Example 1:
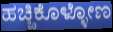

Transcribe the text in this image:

ಹಚ್ಚಿಕೊಳ್ಳೋಣ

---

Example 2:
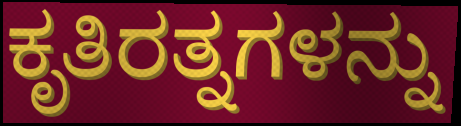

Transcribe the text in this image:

ಕೃತಿರತ್ನಗಳನ್ನು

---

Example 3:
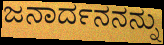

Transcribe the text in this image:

ಜನಾರ್ದನನನ್ನು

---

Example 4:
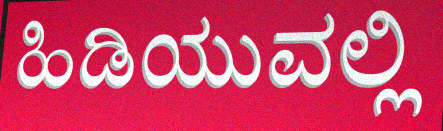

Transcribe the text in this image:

ಹಿಡಿಯುವಲ್ಲಿ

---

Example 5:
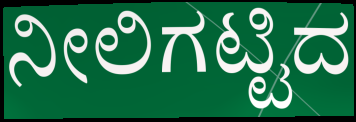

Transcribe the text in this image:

ನೀಲಿಗಟ್ಟಿದ